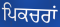
ਪਿਕਚਰਾਂ